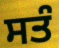
ਸਤੰ